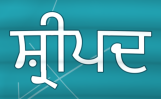
ਸ਼੍ਰੀਪਦ